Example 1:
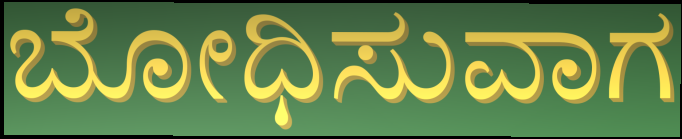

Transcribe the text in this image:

ಬೋಧಿಸುವಾಗ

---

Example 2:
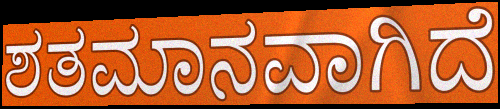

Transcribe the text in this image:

ಶತಮಾನವಾಗಿದೆ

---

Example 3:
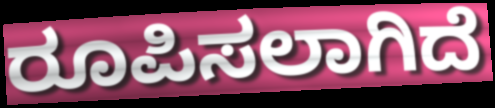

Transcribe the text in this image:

ರೂಪಿಸಲಾಗಿದೆ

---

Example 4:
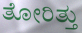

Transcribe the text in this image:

ತೋರಿತ್ತು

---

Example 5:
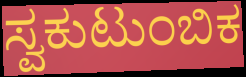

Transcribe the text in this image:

ಸ್ವಕುಟುಂಬಿಕ